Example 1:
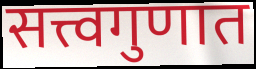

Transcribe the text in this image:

सत्त्वगुणात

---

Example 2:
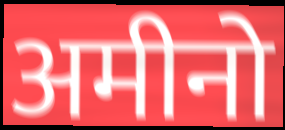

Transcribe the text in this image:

अमीनो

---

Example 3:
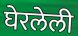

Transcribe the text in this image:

घेरलेली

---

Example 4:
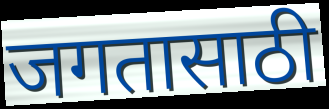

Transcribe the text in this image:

जगतासाठी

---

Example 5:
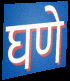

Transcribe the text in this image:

घणे